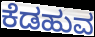
ಕೆಡಹುವ